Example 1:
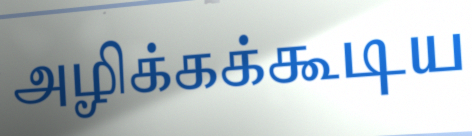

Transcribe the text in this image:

அழிக்கக்கூடிய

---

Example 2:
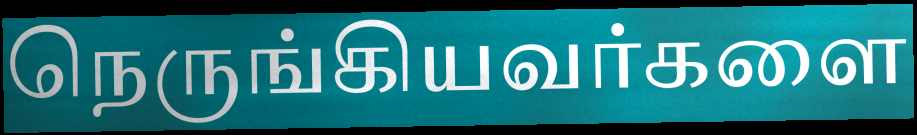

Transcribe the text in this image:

நெருங்கியவர்களை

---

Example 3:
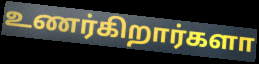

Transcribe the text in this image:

உணர்கிறார்களா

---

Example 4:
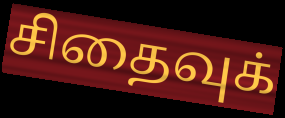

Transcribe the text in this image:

சிதைவுக்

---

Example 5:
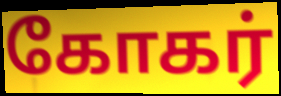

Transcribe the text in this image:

கோகர்